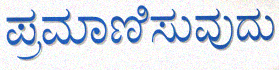
ಪ್ರಮಾಣಿಸುವುದು